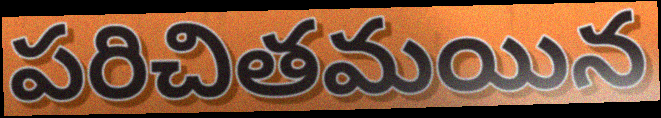
పరిచితమయిన